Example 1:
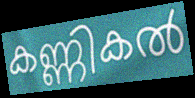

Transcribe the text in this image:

കണ്ണികൽ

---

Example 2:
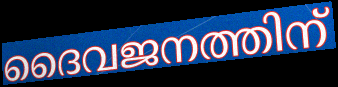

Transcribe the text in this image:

ദൈവജനത്തിന്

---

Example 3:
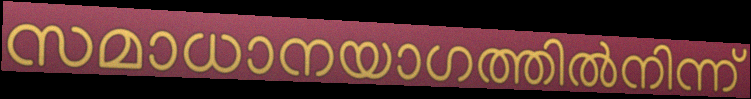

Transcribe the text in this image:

സമാധാനയാഗത്തിൽനിന്ന്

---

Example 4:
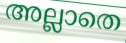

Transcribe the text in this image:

അല്ലാതെ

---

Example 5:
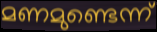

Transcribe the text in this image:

മണമുണ്ടെന്ന്